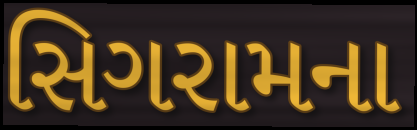
સિગરામના